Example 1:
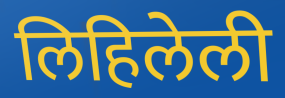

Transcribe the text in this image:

लिहिलेली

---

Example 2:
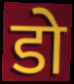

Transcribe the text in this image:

डो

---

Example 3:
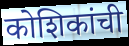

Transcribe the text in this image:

कोशिकांची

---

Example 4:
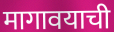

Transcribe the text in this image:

मागावयाची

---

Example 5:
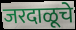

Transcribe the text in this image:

जरदाळूचे